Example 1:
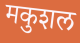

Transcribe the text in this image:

मकुशल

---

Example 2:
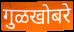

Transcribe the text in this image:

गुळखोबरे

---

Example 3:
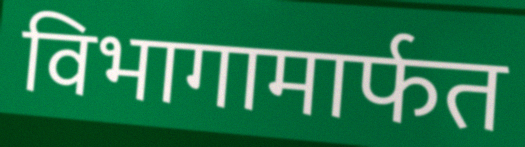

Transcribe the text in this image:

विभागामार्फत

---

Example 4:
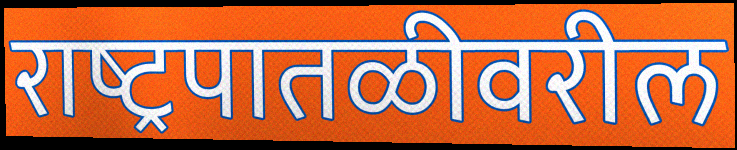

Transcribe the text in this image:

राष्ट्रपातळीवरील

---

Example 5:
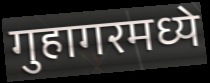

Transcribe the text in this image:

गुहागरमध्ये